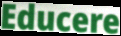
Educere